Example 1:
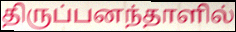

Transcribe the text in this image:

திருப்பனந்தாளில்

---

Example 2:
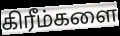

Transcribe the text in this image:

கிரீம்களை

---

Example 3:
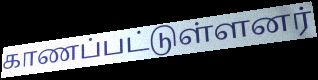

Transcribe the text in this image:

காணப்பட்டுள்ளனர்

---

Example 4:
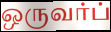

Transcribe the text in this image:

ஒருவர்ப்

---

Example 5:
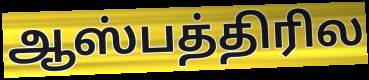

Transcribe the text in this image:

ஆஸ்பத்திரில